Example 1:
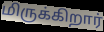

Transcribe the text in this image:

மிருக்கிறார்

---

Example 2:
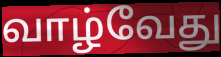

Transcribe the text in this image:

வாழ்வேது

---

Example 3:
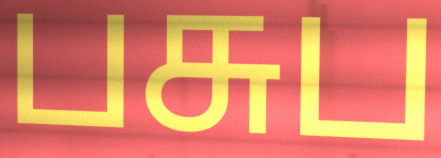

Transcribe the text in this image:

பசுப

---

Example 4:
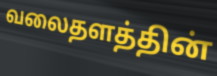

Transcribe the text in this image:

வலைதளத்தின்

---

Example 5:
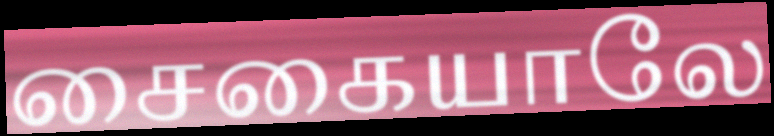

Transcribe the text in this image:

சைகையாலே